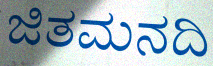
ಜಿತಮನದಿ